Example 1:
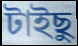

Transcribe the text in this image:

টাইছু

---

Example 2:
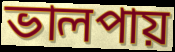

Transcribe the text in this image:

ভালপায়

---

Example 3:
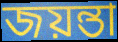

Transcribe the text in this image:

জয়ন্তা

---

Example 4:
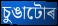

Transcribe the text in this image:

চুঙাটোৰ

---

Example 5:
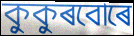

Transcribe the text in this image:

কুকুৰবোৰে